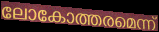
ലോകോത്തരമെന്ന്